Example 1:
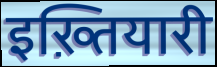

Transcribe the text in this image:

इख़्तियारी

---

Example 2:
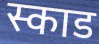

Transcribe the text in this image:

स्काड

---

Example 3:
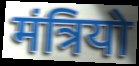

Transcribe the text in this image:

मंत्रियो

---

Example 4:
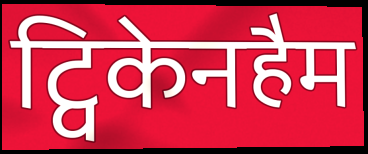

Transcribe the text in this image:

ट्विकेनहैम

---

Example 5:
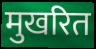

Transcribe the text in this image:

मुखरित